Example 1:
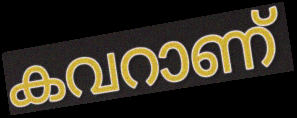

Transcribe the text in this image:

കവറാണ്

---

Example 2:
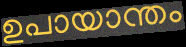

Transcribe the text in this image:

ഉപായാന്തം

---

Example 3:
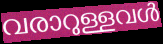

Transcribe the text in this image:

വരാറുള്ളവൾ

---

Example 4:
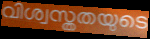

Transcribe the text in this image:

വിശ്വസ്തതയുടെ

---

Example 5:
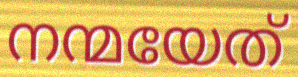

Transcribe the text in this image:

നന്മയേത്